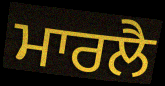
ਮਾਰਲੈ